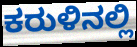
ಕರುಳಿನಲ್ಲಿ